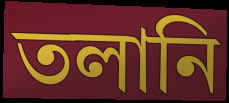
তলানি